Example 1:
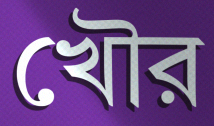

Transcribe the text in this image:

খৌর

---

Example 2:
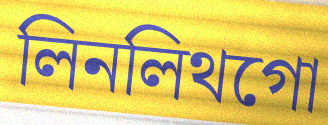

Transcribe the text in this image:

লিনলিথগো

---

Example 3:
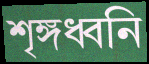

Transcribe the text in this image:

শৃঙ্গধ্বনি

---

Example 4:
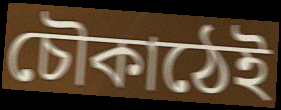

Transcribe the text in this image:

চৌকাঠেই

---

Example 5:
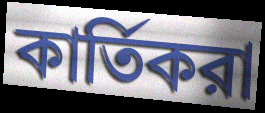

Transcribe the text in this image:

কার্তিকরা